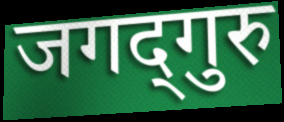
जगद्‍गुरु